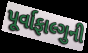
પૂર્વાફાલ્ગુની